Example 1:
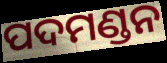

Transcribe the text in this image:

ପଦମଣ୍ଡନ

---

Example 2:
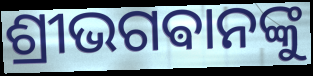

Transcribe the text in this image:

ଶ୍ରୀଭଗଵାନଙ୍କୁ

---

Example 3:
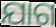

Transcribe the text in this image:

ଯାଗ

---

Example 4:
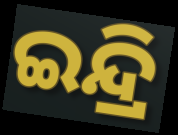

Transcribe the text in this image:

ଇନ୍ଦ୍ରି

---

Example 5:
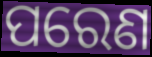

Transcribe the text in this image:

ପରେଣ